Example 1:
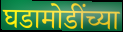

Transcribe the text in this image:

घडामोडींच्या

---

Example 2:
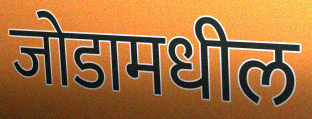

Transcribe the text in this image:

जोडामधील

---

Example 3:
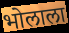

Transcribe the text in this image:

भोलाला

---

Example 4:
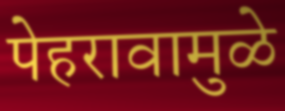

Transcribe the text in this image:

पेहरावामुळे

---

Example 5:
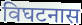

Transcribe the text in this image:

विघटनास